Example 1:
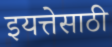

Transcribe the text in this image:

इयत्तेसाठी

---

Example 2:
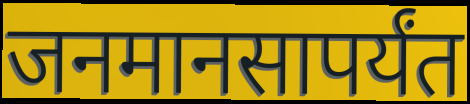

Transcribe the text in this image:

जनमानसापर्यंत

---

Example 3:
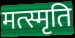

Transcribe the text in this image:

मत्स्मृति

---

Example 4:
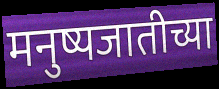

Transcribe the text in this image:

मनुष्यजातीच्या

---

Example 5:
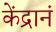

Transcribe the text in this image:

केंद्रानं